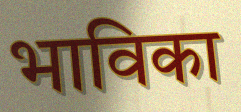
भाविका